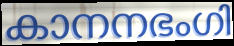
കാനനഭംഗി